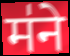
म॑ने